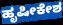
ಹೃಷೀಕೇಶ